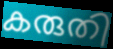
കരുതി